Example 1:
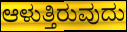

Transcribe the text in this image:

ಆಳುತ್ತಿರುವುದು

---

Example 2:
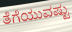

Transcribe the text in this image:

ತೆಗೆಯುವಷ್ಟು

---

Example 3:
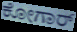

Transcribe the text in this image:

ಕೋಗಾರ್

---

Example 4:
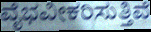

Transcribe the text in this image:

ವೈಭವೀಕರಿಸುತ್ತಿವೆ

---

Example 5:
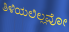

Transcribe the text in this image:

ತಿಳಿಯಲಿಲ್ಲವೋ